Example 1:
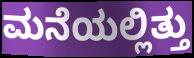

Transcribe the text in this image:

ಮನೆಯಲ್ಲಿತ್ತು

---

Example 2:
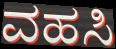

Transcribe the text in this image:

ವಹಸಿ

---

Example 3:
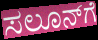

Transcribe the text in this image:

ಸಲೂನ್‍ಗೆ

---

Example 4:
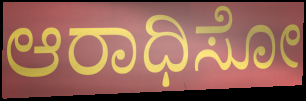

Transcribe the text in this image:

ಆರಾಧಿಸೋ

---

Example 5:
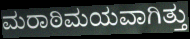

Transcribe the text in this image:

ಮರಾಠಿಮಯವಾಗಿತ್ತು